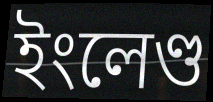
ইংলেণ্ড